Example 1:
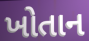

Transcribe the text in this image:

ખોતાન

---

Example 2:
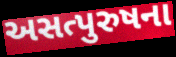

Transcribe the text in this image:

અસત્પુરુષના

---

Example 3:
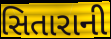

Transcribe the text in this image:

સિતારાની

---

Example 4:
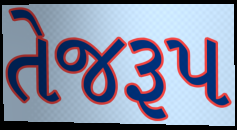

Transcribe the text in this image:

તેજરૂપ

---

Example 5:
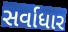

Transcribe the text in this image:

સર્વાધાર